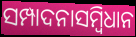
ସମ୍ପାଦନାସମ୍ବିଧାନ